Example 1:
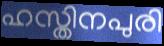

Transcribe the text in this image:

ഹസ്തിനപുരി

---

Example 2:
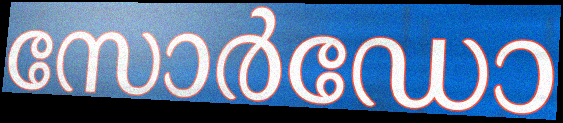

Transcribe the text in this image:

സോർഡോ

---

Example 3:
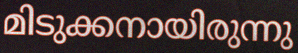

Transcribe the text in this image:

മിടുക്കനായിരുന്നു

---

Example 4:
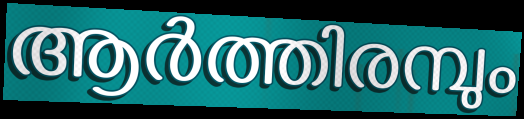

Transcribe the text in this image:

ആർത്തിരമ്പും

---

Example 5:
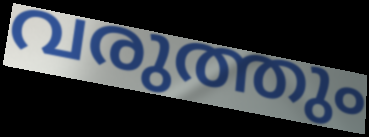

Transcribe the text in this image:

വരുത്തും